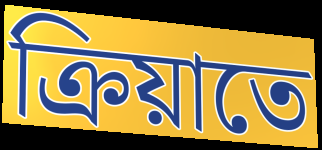
ক্রিয়াতে